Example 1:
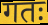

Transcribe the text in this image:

गतः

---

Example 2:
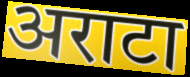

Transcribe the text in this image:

अराटा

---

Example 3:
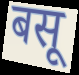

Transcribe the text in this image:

बसू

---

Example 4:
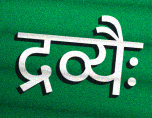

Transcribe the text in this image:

द्रव्यैः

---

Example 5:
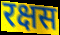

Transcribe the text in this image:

रक्षस